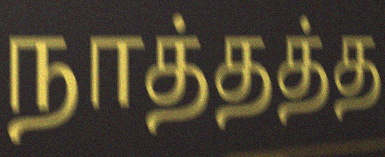
நாத்தத்த